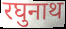
रघुनाथ